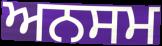
ਅਨਸਮ